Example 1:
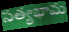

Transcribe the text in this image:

సత్యభామ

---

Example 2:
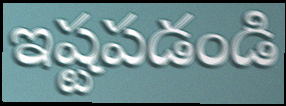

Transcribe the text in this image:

ఇష్టపడండి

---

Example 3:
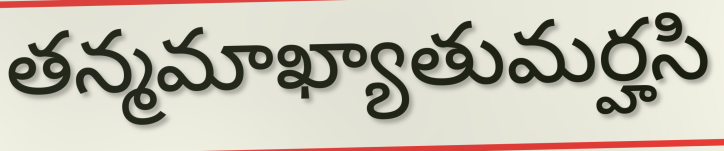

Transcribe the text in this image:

తన్మమాఖ్యాతుమర్హసి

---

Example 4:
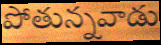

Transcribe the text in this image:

పోతున్నవాడు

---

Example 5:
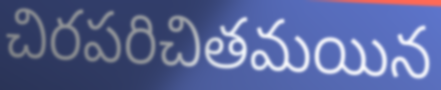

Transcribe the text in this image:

చిరపరిచితమయిన